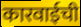
कारवाईची